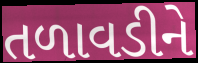
તળાવડીને